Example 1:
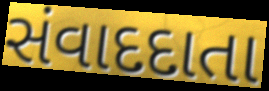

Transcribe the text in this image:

સંવાદદાતા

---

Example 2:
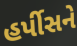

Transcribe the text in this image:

હર્પીસને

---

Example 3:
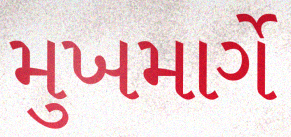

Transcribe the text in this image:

મુખમાર્ગે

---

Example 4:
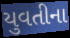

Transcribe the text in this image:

યુવતીના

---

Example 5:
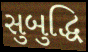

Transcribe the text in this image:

સુબુદ્ધિ